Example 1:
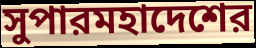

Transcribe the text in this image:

সুপারমহাদেশের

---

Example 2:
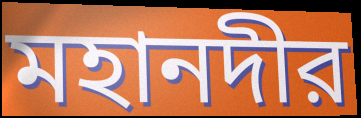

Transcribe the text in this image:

মহানদীর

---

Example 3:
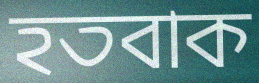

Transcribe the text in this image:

হতবাক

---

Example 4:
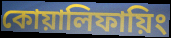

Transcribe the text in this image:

কোয়ালিফায়িং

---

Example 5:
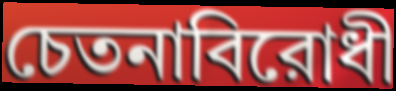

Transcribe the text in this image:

চেতনাবিরোধী